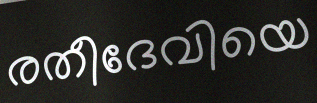
രതീദേവിയെ